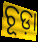
ଚୂଡ଼ା